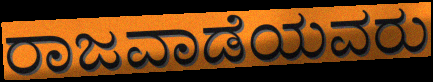
ರಾಜವಾಡೆಯವರು